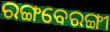
ରଙ୍ଗବେରଙ୍ଗୀ